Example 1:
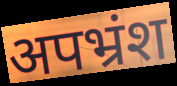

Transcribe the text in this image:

अपभ्रंश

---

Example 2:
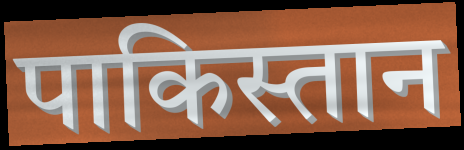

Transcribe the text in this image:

पाकिस्‍तान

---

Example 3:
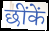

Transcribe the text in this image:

छींकें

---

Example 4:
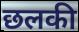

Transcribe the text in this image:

छलकी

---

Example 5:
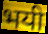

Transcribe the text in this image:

भयी